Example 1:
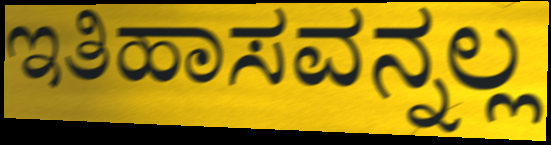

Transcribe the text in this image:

ಇತಿಹಾಸವನ್ನಲ್ಲ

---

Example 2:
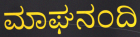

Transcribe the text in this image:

ಮಾಘನಂದಿ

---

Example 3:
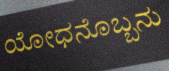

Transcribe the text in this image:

ಯೋಧನೊಬ್ಬನು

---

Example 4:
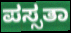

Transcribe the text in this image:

ಪಸ್ಸತಾ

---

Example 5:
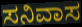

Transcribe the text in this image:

ಸನಿವಾಸ